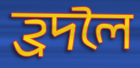
হ্ৰদলৈ